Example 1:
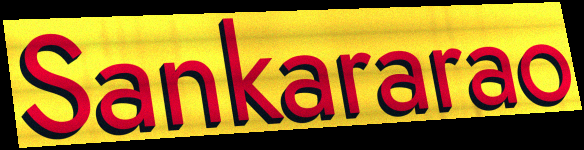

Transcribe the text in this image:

Sankararao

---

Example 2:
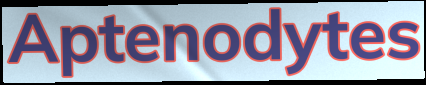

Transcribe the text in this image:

Aptenodytes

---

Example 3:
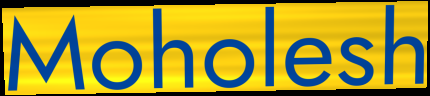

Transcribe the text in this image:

Moholesh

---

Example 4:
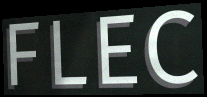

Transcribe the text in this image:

FLEC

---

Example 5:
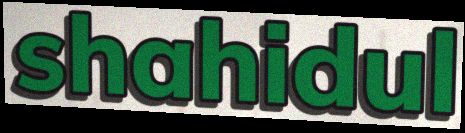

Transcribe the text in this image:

shahidul